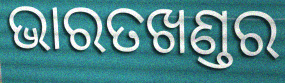
ଭାରତଖଣ୍ଡର